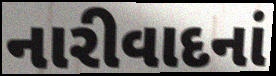
નારીવાદનાં